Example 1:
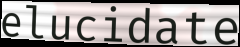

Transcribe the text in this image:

elucidate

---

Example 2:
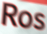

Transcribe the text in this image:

Ros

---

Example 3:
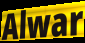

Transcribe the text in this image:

Alwar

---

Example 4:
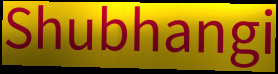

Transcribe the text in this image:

Shubhangi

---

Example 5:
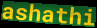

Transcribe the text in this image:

ashathi